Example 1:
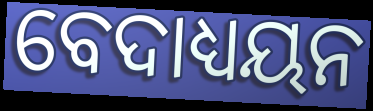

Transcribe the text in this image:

ବେଦାଧ୍ୟୟନ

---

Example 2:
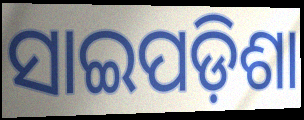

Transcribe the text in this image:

ସାଇପଡ଼ିଶା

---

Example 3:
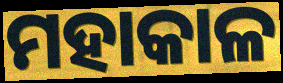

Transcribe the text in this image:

ମହାକାଳ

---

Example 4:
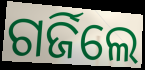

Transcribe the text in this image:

ଗର୍ଜିଲେ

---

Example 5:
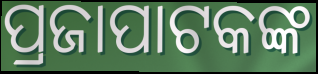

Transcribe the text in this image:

ପ୍ରଜାପାଟକଙ୍କ